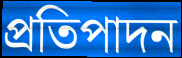
প্রতিপাদন